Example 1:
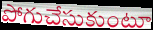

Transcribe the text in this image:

పోగుచేసుకుంటూ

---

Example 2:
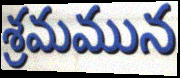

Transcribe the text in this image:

శ్రమమున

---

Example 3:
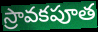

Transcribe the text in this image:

స్రావకపూత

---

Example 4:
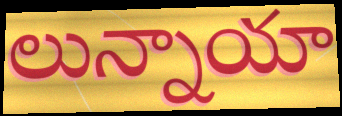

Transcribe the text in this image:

లున్నాయా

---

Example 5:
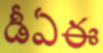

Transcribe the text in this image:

డీఏఈ